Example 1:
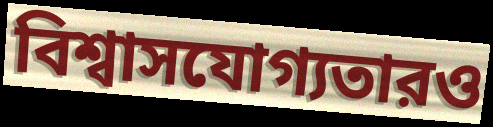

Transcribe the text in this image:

বিশ্বাসযোগ্যতারও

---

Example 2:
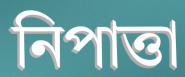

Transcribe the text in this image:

নিপাত্তা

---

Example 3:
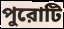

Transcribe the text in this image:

পুরোটি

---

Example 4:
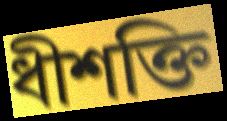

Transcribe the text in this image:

ধীশক্তি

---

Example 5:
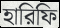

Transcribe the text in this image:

হারিফি